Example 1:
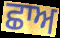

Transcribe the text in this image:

ਛਾਅ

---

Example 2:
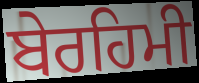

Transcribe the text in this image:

ਬੇਰਹਿਮੀ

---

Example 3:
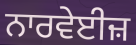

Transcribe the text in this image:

ਨਾਰਵੇਈਜ਼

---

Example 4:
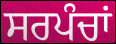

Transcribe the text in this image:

ਸਰਪੰਚਾਂ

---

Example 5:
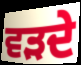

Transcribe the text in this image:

ਵੜਦੇ